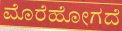
ಮೊರೆಹೋಗದೆ